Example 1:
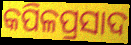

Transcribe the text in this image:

କପିଳପ୍ରସାଦ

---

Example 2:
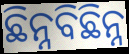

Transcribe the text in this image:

ଛିନ୍ନବିଛିନ୍ନ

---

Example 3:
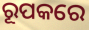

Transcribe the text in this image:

ରୂପକରେ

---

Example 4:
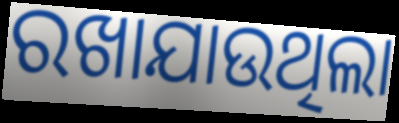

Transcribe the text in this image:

ରଖାଯାଉଥିଲା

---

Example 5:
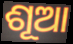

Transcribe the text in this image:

ଶୂଆ